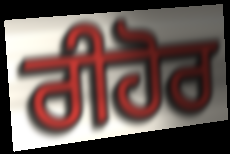
ਰੀਹੋਰ